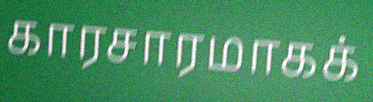
காரசாரமாகக்